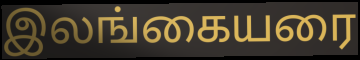
இலங்கையரை